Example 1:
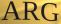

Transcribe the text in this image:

ARG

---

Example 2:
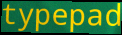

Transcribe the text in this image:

typepad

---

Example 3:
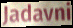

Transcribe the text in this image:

Jadavni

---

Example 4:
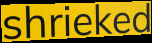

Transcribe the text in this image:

shrieked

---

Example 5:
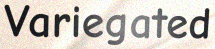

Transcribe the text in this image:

Variegated